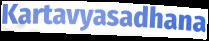
Kartavyasadhana